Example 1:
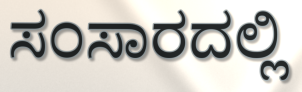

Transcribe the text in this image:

ಸಂಸಾರದಲ್ಲಿ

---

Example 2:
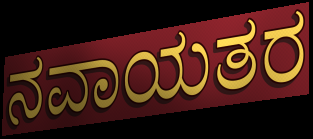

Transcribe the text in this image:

ನವಾಯತರ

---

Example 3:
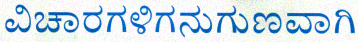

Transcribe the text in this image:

ವಿಚಾರಗಳಿಗನುಗುಣವಾಗಿ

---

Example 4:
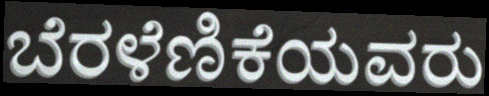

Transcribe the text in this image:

ಬೆರಳೆಣಿಕೆಯವರು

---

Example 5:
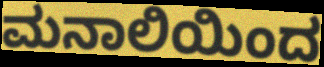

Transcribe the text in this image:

ಮನಾಲಿಯಿಂದ